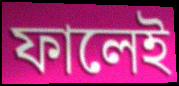
ফালেই